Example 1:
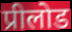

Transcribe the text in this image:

प्रीलोड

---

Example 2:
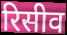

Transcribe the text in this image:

रिसीव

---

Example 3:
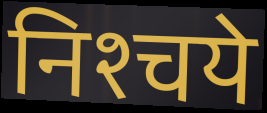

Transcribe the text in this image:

निश्चये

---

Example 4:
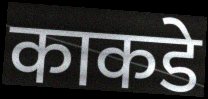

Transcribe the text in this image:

काकडे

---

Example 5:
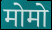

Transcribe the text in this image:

मोमो